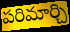
పరిమార్చి